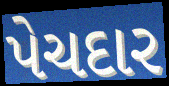
પેચદાર